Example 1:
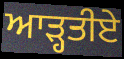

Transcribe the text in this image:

ਆੜ੍ਹਤੀਏ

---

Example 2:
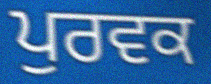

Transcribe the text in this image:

ਪੁਰਵਕ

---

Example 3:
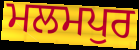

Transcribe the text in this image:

ਮਲਮਪੁਰ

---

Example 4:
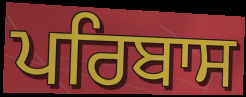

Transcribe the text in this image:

ਪਰਿਬਾਸ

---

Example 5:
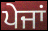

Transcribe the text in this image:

ਪੇਜਾਂ